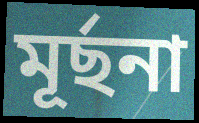
মূর্ছনা